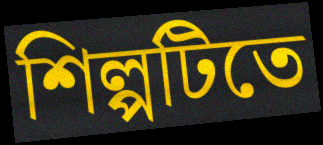
শিল্পটিতে